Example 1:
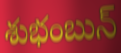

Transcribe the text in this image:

శుభంబున్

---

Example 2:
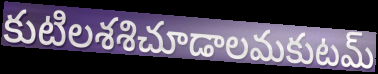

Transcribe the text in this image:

కుటిలశశిచూడాలమకుటమ్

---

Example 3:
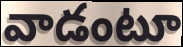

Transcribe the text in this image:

వాడంటూ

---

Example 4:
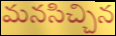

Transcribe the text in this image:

మనసిచ్చిన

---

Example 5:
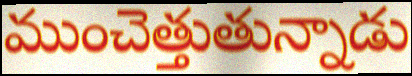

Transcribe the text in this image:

ముంచెత్తుతున్నాడు